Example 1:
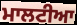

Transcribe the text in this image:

ਮਾਲਟੀਆ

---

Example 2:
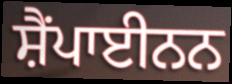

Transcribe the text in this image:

ਸ਼ੈਂਪਾਈਨਨ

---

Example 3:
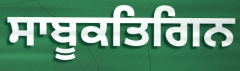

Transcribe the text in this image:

ਸਾਬੂਕਤਿਗਿਨ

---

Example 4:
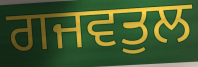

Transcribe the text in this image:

ਗਜਵਤੁਲ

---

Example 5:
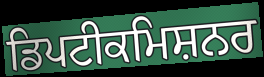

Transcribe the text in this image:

ਡਿਪਟੀਕਮਿਸ਼ਨਰ